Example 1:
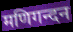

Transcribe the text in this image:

मणिगन्दन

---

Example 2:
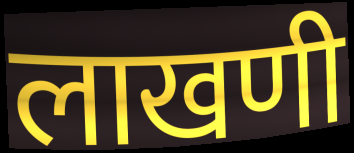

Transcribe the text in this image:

लाखणी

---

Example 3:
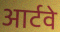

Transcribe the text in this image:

आर्टवे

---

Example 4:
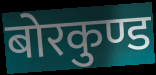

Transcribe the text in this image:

बोरकुण्ड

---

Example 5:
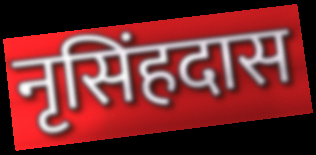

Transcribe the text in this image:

नृसिंहदास